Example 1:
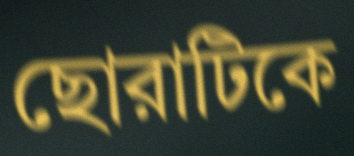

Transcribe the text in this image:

ছোরাটিকে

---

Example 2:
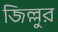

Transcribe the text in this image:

জিল্লুর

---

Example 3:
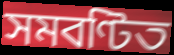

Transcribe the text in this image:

সমবণ্টিত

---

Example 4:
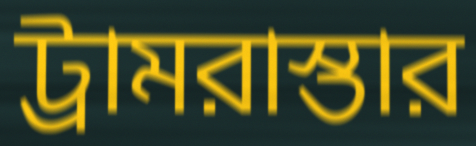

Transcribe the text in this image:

ট্রামরাস্তার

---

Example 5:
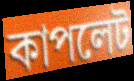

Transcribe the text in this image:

কাপলেট